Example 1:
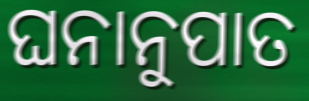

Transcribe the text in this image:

ଘନାନୁପାତ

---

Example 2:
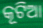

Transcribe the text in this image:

କୂଟିଆ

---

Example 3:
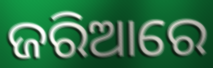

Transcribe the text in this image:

ଜରିଆରେ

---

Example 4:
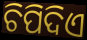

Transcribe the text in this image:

ଚିପିଦିଏ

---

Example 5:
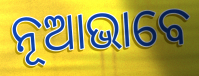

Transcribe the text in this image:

ନୂଆଭାବେ